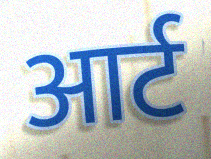
आर्ट